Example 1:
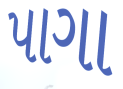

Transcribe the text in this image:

પાગા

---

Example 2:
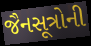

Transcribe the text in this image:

જૈનસૂત્રોની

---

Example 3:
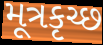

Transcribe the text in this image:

મૂત્રકૃચ્છ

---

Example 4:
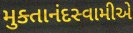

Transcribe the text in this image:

મુક્તાનંદસ્વામીએ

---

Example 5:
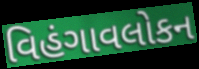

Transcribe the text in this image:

વિહંગાવલોકન